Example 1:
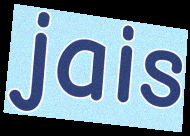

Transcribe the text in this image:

jais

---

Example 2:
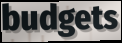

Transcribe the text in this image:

budgets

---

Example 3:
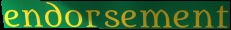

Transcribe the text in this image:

endorsement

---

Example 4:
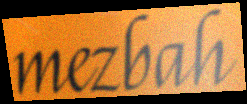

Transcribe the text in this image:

mezbah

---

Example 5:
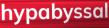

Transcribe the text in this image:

hypabyssal